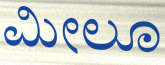
ಮೀಲೂ